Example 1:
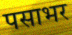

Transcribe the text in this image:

पसाभर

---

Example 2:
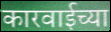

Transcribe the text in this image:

कारवाईच्या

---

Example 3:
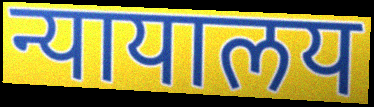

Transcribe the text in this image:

न्यायालय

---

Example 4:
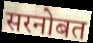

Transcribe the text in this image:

सरनोबत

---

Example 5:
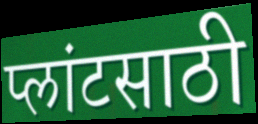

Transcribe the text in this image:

प्लांटसाठी